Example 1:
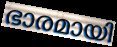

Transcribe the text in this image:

ഭാരമായി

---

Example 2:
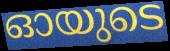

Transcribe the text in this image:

ഓയുടെ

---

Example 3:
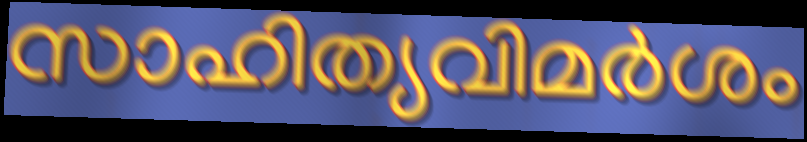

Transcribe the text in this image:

സാഹിത്യവിമർശം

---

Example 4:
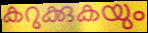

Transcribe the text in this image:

കറുക്കുകയും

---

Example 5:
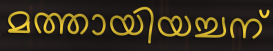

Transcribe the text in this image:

മത്തായിയച്ചന്